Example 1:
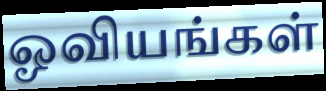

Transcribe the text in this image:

ஓவியங்கள்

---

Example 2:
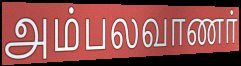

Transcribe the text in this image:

அம்பலவாணர்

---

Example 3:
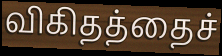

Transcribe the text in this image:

விகிதத்தைச்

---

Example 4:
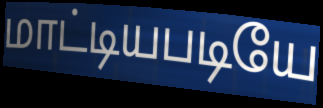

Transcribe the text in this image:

மாட்டியபடியே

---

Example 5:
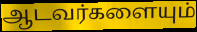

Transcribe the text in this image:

ஆடவர்களையும்